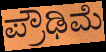
ಪ್ರೌಢಿಮೆ